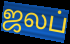
ஜலப்